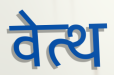
वेत्थ